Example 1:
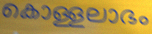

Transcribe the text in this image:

കൊള്ളലാഭം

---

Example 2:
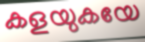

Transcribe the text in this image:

കളയുകയേ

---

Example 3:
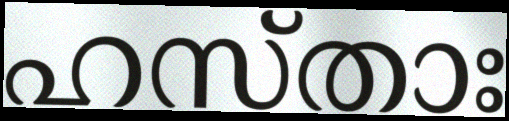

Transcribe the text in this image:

ഹസ്താഃ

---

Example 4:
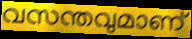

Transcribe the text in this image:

വസന്തവുമാണ്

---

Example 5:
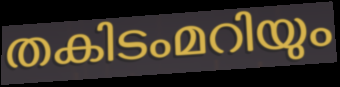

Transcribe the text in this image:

തകിടംമറിയും